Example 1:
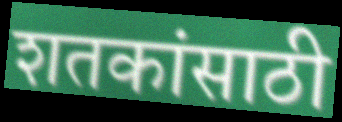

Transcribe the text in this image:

शतकांसाठी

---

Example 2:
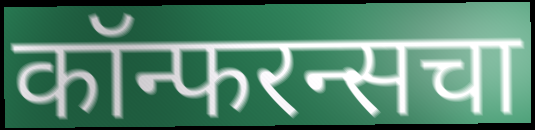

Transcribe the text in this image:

कॉन्फरन्सचा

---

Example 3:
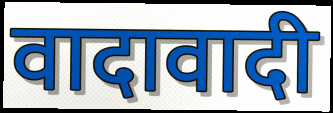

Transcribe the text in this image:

वादावादी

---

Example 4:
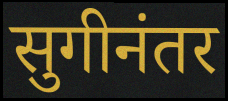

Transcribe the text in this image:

सुगीनंतर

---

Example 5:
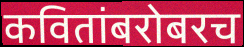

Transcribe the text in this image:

कवितांबरोबरच